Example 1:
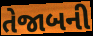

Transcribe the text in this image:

તેજાબની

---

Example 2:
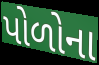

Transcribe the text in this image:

પોળોના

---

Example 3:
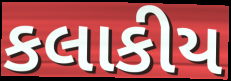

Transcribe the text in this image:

કલાકીય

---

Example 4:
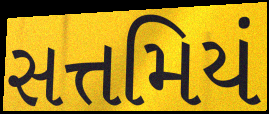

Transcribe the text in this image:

સત્તમિયં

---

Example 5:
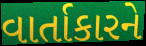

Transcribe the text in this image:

વાર્તાકારને